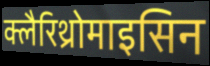
क्लैरिथ्रोमाइसिन